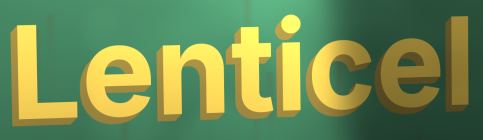
Lenticel